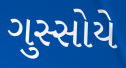
ગુસ્સોયે